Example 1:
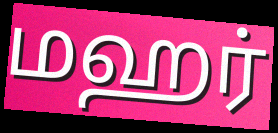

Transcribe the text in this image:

மஹர்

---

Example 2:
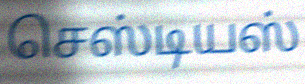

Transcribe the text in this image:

செஸ்டியஸ்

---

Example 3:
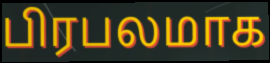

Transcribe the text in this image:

பிரபலமாக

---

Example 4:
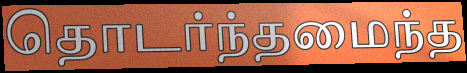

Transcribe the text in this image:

தொடர்ந்தமைந்த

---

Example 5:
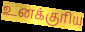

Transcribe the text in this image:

உனக்குரிய